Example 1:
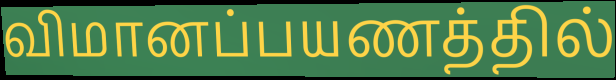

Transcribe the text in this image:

விமானப்பயணத்தில்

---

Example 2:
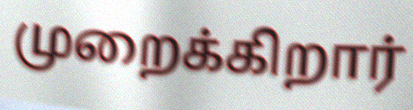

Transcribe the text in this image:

முறைக்கிறார்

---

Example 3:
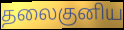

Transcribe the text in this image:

தலைகுனிய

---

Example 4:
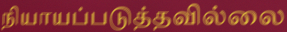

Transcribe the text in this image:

நியாயப்படுத்தவில்லை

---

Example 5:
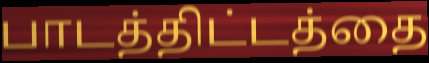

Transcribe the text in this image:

பாடத்திட்டத்தை